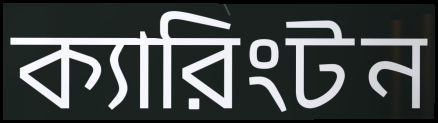
ক্যারিংটন